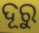
ଦୂରୁ